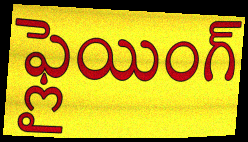
ఫ్లైయింగ్